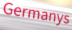
Germanys